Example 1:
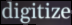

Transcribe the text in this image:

digitize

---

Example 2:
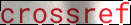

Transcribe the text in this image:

crossref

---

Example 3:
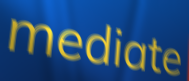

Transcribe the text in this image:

mediate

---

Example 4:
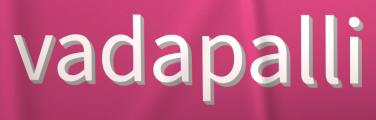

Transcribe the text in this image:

vadapalli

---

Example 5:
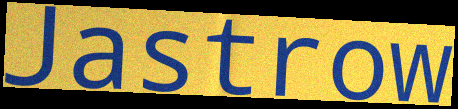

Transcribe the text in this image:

Jastrow